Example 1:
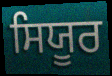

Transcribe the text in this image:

ਸਿਯੂਰ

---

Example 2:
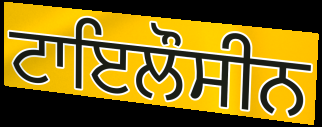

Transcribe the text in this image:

ਟਾਇਲੌਸੀਨ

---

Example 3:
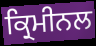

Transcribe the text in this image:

ਕ੍ਰਿਮੀਨਲ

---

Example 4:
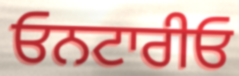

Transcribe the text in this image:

ਓਨਟਾਰੀਓ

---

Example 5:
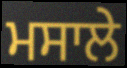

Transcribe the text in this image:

ਮਸਾਲੇ